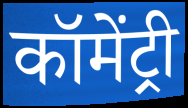
कॉमेंट्री